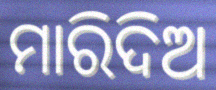
ମାରିଦିଅ